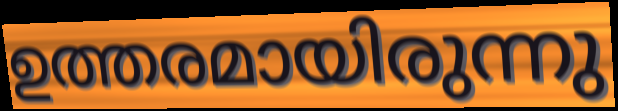
ഉത്തരമായിരുന്നു